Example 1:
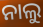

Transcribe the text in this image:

ନାଲୁ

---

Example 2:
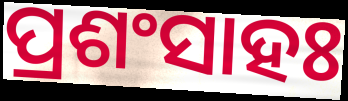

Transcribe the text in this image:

ପ୍ରଶଂସାହଃ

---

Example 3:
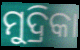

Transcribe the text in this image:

ମୁଦ୍ରିକା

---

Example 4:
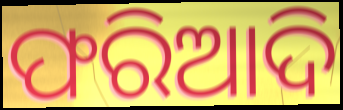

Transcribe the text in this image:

ଫରିଆଦି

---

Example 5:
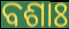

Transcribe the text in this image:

ବଶାଃ